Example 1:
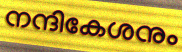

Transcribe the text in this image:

നന്ദികേശനും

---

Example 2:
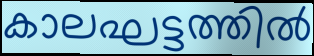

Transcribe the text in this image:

കാലഘട്ടത്തിൽ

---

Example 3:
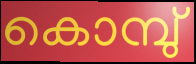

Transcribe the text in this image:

കൊമ്പു്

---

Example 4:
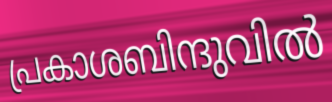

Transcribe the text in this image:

പ്രകാശബിന്ദുവിൽ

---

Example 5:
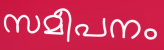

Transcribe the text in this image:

സമീപനം